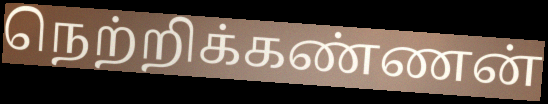
நெற்றிக்கண்ணன்